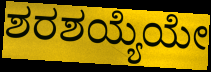
ಶರಶಯ್ಯೆಯೇ